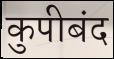
कुपीबंद